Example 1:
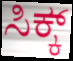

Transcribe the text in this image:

ಸಿಕ್ಕ್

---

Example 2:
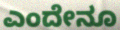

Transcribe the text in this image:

ಎಂದೇನೂ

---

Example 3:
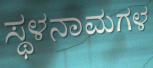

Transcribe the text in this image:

ಸ್ಥಳನಾಮಗಳ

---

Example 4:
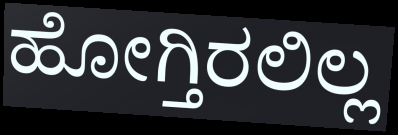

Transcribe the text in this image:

ಹೋಗ್ತಿರಲಿಲ್ಲ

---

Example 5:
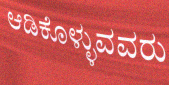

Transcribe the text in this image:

ಆಡಿಕೊಳ್ಳುವವರು